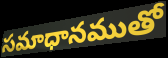
సమాధానముతో